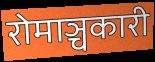
रोमाञ्चकारी